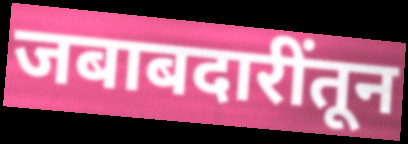
जबाबदारींतून